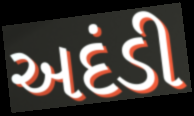
અદંડી